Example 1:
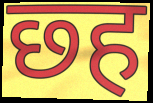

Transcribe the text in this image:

छ्ह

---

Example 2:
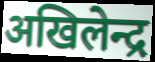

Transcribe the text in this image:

अखिलेन्द्र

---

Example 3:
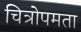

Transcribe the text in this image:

चित्रोपमता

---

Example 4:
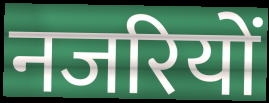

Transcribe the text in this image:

नजरियों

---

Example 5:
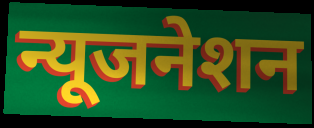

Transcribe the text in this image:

न्यूजनेशन